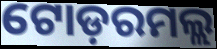
ଟୋଡ଼ରମଲ୍ଲ